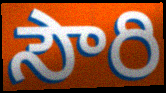
సౌరి